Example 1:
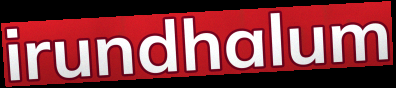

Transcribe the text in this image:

irundhalum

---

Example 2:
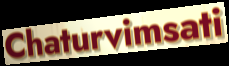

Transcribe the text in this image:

Chaturvimsati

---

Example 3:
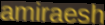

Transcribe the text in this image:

amiraesh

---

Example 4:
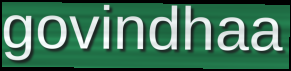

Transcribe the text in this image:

govindhaa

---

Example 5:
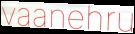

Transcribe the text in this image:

vaanehru